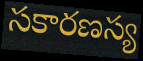
సకారణస్య